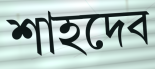
শাহদেব